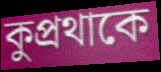
কুপ্রথাকে